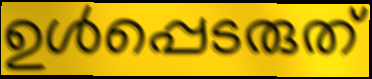
ഉൾപ്പെടരുത്